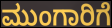
ಮುಂಗಾರಿಗೆ